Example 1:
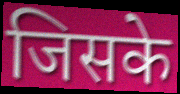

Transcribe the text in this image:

जिसके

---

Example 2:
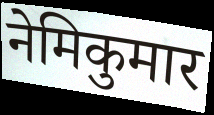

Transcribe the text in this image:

नेमिकुमार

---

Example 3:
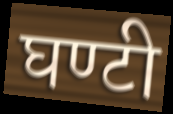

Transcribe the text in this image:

घण्टी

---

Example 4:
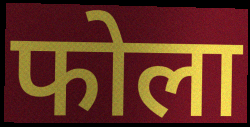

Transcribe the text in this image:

फोला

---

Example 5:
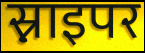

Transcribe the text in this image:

स्नाइपर